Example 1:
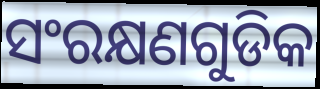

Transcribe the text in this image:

ସଂରକ୍ଷଣଗୁଡିକ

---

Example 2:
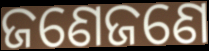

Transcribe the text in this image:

ଜଣେଜଣେ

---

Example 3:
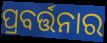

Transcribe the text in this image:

ପ୍ରବର୍ତ୍ତନାର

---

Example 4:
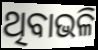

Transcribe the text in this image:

ଥିବାଭଳି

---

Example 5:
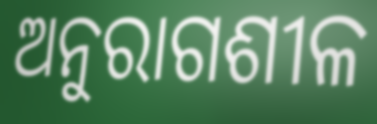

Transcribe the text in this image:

ଅନୁରାଗଶୀଳ